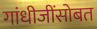
गांधीजींसोबत